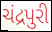
ચંદ્રપુરી